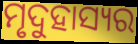
ମୃଦୁହାସ୍ୟର